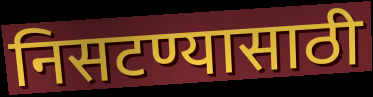
निसटण्यासाठी